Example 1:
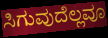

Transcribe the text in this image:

ಸಿಗುವುದೆಲ್ಲವೂ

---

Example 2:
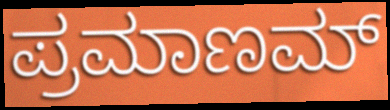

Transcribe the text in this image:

ಪ್ರಮಾಣಮ್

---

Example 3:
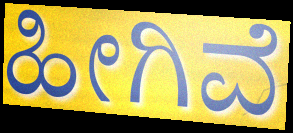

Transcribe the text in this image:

ಹೀಗಿವೆ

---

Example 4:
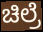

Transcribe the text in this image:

ಚಿಲ್ರೆ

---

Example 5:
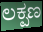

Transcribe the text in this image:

ಲಕ್ಪಣ